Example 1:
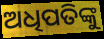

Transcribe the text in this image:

ଅଧିପତିଙ୍କୁ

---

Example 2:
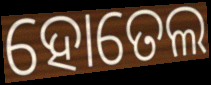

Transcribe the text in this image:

ହୋତେଲ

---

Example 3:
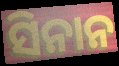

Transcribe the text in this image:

ସିନାନ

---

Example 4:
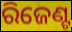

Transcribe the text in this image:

ରିଜେଣ୍ଟ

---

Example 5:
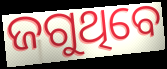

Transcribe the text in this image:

ଜଗୁଥିବେ